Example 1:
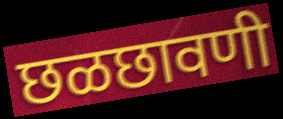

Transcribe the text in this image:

छळछावणी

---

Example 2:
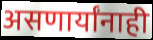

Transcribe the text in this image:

असणार्यांनाही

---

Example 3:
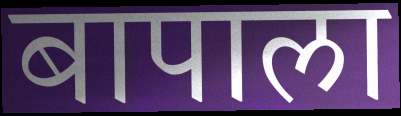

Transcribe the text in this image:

बापाला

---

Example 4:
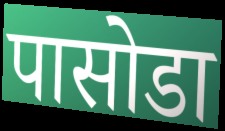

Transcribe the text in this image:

पासोडा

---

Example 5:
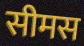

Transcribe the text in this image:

सीमस